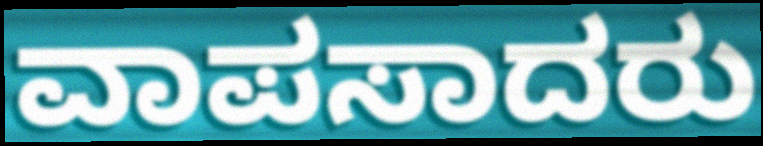
ವಾಪಸಾದರು